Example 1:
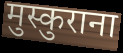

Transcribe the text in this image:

मुस्कुराना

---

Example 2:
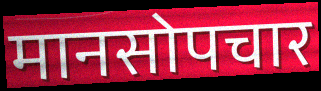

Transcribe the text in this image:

मानसोपचार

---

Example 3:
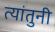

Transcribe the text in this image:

त्यांतुनी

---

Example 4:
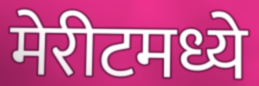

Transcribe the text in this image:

मेरीटमध्ये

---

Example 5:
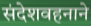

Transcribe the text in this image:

संदेशवहनाने